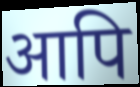
आपि